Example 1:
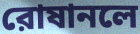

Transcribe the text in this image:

রোষানলে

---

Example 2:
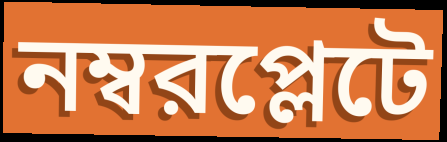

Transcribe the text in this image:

নম্বরপ্লেটে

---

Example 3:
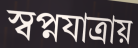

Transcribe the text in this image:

স্বপ্নযাত্রায়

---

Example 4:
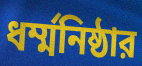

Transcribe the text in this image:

ধর্ম্মনিষ্ঠার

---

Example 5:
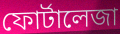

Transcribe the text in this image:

ফোর্টালেজা